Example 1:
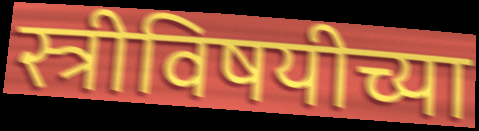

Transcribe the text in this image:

स्त्रीविषयीच्या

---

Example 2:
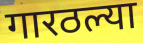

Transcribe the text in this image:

गारठल्या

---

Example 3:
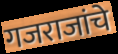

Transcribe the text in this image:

गजराजांचे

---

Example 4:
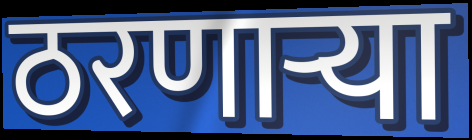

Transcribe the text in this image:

ठरणाऱ्या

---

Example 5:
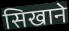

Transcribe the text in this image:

सिखाने